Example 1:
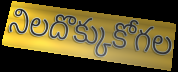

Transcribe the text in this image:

నిలదొక్కుకోగల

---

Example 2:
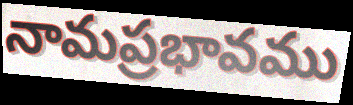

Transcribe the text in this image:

నామప్రభావము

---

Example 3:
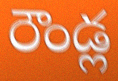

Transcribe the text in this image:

రౌండ్ల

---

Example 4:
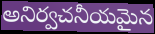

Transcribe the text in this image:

అనిర్వచనీయమైన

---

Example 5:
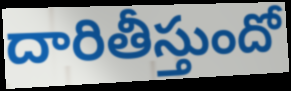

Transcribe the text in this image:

దారితీస్తుందో